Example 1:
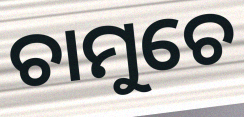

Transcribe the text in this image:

ଚାମୁଚେ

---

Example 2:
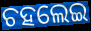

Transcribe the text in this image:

ଚହଲେଇ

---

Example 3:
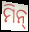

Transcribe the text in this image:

ମିନ୍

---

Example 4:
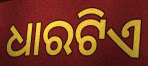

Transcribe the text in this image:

ଧାରଟିଏ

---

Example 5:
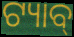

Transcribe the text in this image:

ଟ୍ୟାବ୍